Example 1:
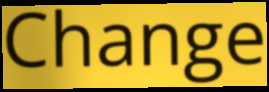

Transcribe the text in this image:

Change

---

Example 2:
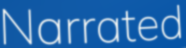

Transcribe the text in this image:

Narrated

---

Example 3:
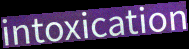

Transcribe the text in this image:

intoxication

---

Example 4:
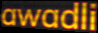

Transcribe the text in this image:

awadli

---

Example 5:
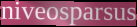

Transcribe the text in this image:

niveosparsus